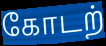
கோடற்